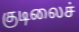
குடிலைச்